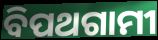
ବିପଥଗାମୀ